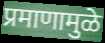
प्रमाणामुळे